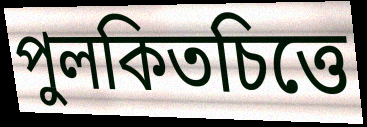
পুলকিতচিত্তে